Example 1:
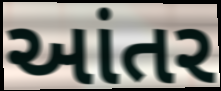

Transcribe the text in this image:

આંતર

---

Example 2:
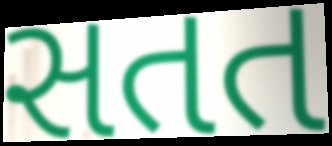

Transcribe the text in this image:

સતત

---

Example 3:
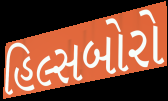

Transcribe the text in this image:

હિલ્સબોરો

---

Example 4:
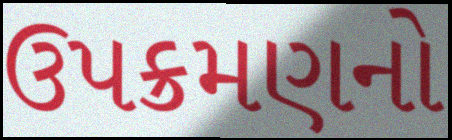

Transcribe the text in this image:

ઉપક્રમણનો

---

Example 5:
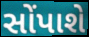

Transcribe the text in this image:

સોંપાશે